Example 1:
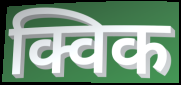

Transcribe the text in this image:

क्विक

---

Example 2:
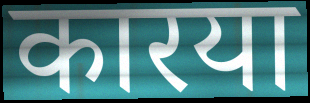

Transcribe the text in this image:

कारया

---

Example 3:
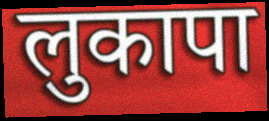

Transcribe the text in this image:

लुकापा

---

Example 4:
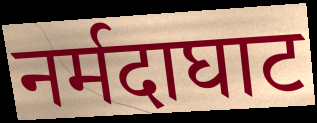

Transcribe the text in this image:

नर्मदाघाट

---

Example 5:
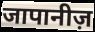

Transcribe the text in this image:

जापानीज़